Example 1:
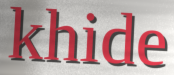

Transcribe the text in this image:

khide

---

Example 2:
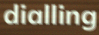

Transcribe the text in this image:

dialling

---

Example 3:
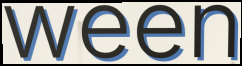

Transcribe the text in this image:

ween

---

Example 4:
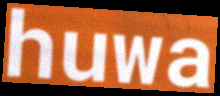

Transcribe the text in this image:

huwa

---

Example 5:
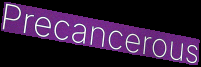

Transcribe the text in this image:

Precancerous